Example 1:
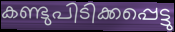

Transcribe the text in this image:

കണ്ടുപിടിക്കപ്പെട്ടു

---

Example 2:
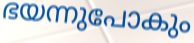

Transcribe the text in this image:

ഭയന്നുപോകും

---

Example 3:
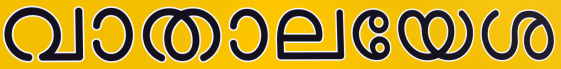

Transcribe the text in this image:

വാതാലയേശ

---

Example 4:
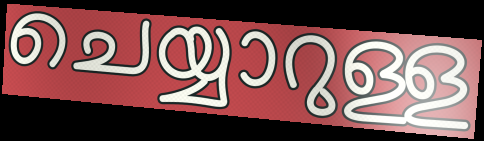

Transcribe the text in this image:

ചെയ്യാറുള്ള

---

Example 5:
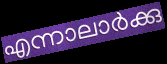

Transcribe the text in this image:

എന്നാലാർക്കു